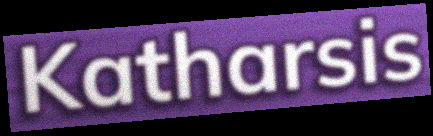
Katharsis